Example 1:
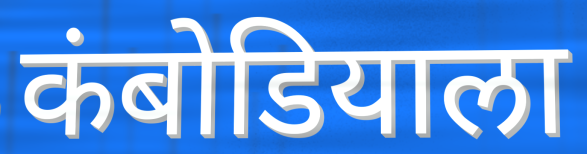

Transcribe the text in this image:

कंबोडियाला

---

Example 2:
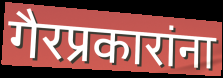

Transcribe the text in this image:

गैरप्रकारांना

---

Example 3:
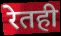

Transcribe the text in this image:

रेतही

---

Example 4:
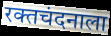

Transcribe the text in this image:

रक्तचंदनाला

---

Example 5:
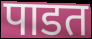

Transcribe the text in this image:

पाडत